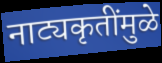
नाट्यकृतींमुळे